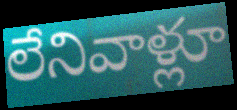
లేనివాళ్లూ